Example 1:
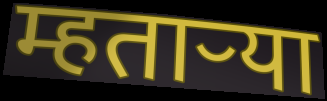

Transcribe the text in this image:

म्हताऱ्या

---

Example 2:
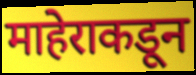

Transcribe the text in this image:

माहेराकडून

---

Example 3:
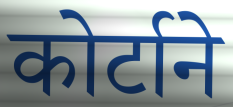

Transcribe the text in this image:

कोर्टाने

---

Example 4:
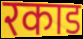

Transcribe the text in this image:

रकाड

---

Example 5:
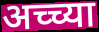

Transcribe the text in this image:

अच्च्या